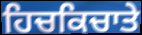
ਹਿਚਕਿਚਾਤੇ